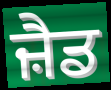
ਜ਼ੈਡ